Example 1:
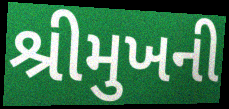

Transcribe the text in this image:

શ્રીમુખની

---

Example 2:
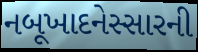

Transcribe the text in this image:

નબૂખાદનેસ્સારની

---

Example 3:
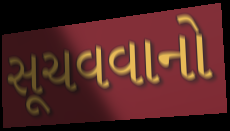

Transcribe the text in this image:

સૂચવવાનો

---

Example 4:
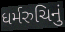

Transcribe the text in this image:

ધર્મરુચિનું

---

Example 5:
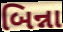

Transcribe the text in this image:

બિન્ના